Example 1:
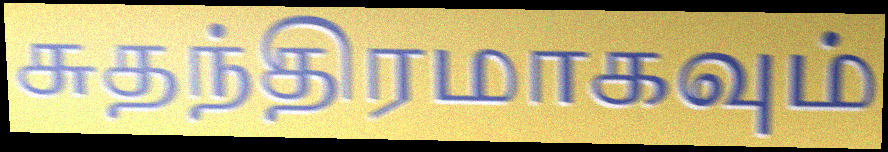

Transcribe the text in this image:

சுதந்திரமாகவும்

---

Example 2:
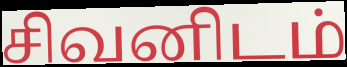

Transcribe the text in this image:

சிவனிடம்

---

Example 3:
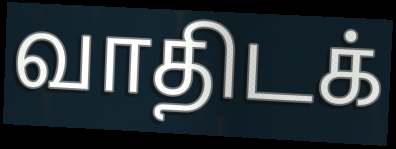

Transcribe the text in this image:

வாதிடக்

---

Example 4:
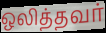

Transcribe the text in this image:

ஒலித்தவர்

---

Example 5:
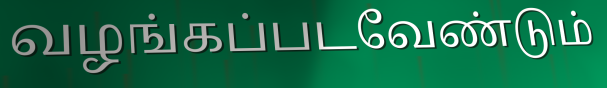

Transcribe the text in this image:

வழங்கப்படவேண்டும்